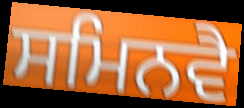
ਸਮਿਨਵੈ